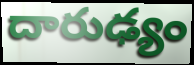
దారుఢ్యం